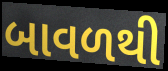
બાવળથી